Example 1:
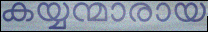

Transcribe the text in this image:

കയ്യന്മാരായ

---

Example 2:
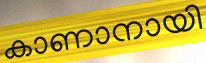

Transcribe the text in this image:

കാണാനായി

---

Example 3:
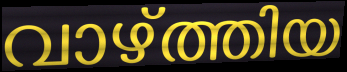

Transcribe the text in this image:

വാഴ്ത്തിയ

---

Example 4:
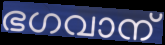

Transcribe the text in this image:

ഭഗവാന്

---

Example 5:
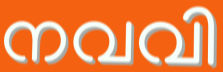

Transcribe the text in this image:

നവവി